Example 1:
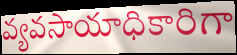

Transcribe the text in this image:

వ్యవసాయాధికారిగా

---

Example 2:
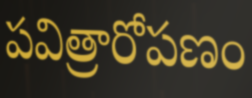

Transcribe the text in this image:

పవిత్రారోపణం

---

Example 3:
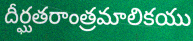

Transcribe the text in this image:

దీర్ఘతరాంత్రమాలికయు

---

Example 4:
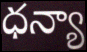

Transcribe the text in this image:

ధన్యా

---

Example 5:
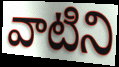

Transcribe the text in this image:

వాటిని